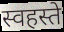
स्वहस्ते